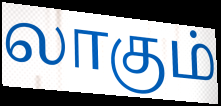
லாகும்